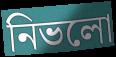
নিভলো